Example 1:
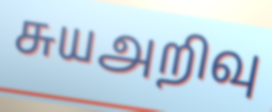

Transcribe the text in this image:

சுயஅறிவு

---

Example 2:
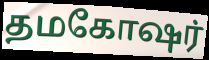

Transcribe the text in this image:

தமகோஷர்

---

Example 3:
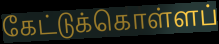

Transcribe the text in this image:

கேட்டுக்கொள்ளப்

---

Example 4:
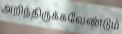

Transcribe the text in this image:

அறிந்திருக்கவேண்டும்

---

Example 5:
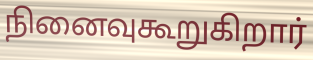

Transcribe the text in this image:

நினைவுகூறுகிறார்